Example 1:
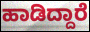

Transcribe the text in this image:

ಹಾಡಿದ್ದಾರೆ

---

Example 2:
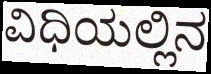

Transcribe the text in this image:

ವಿಧಿಯಲ್ಲಿನ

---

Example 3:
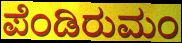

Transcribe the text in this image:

ಪೆಂಡಿರುಮಂ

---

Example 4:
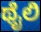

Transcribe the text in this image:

ಥೈಲಿ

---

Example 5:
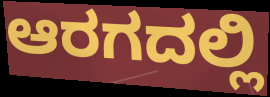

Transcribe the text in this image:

ಆರಗದಲ್ಲಿ